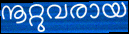
നൂറ്റുവരായ